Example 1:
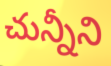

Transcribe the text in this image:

చున్నీని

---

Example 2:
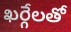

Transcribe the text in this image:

ఖర్గేలతో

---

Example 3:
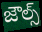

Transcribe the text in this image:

జౌల్స్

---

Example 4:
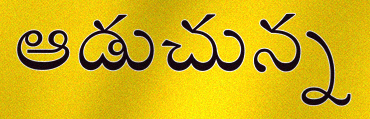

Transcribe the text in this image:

ఆడుచున్న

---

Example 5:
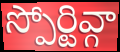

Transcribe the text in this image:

స్పోర్టివ్గా